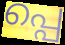
പ്പെ